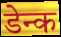
डेन्क